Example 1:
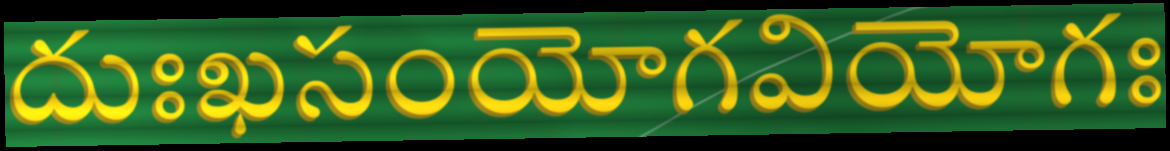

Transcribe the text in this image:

దుఃఖసంయోగవియోగః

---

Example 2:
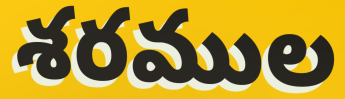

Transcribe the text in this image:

శరముల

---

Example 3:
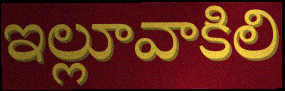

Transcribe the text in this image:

ఇల్లూవాకిలి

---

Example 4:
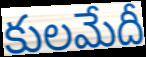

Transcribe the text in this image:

కులమేదీ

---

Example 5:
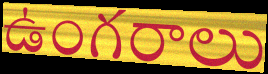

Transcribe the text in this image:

ఉంగరాలు